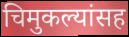
चिमुकल्यांसह